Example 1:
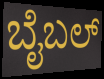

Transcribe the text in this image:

ಬೈಬಲ್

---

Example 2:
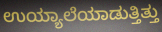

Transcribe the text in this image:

ಉಯ್ಯಾಲೆಯಾಡುತ್ತಿತ್ತು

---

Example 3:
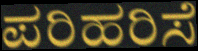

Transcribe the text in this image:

ಪರಿಹರಿಸೆ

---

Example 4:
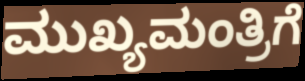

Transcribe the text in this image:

ಮುಖ್ಯಮಂತ್ರಿಗೆ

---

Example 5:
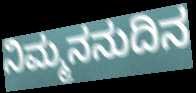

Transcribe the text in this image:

ನಿಮ್ಮನನುದಿನ